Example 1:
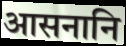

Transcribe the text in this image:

आसनानि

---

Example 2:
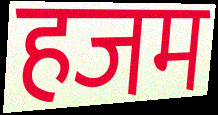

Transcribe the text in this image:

हजम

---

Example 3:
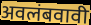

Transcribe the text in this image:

अवलंबवावी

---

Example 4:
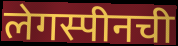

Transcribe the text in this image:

लेगस्पीनची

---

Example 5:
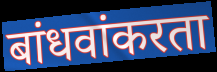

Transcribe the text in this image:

बांधवांकरता